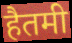
हैतमी